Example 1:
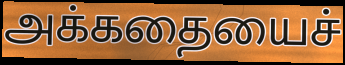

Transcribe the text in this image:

அக்கதையைச்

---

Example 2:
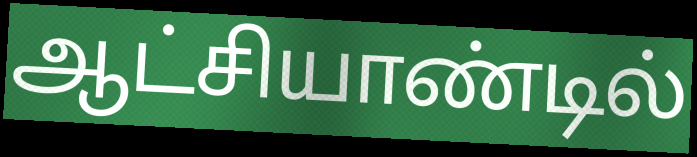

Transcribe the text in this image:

ஆட்சியாண்டில்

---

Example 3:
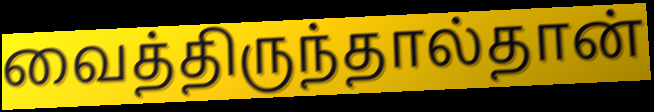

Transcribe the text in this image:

வைத்திருந்தால்தான்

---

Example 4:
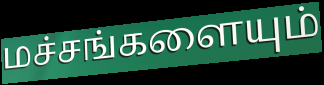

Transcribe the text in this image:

மச்சங்களையும்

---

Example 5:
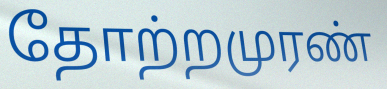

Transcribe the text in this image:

தோற்றமுரண்